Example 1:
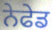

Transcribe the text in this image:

ਨੇਫੇਡ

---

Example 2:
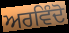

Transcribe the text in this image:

ਅਰਵਿੰਦੋ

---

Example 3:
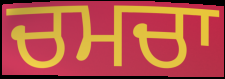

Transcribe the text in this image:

ਚਮਚਾ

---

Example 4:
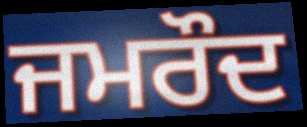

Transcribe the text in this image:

ਜਮਰੌਦ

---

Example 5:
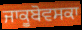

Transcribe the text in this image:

ਜਾਕੂਬੋਵਸਕਾ